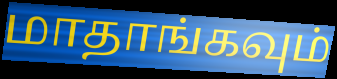
மாதாங்கவும்